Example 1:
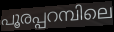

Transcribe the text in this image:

പൂരപ്പറമ്പിലെ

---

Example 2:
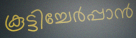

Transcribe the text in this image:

കൂട്ടിച്ചേർപ്പാൻ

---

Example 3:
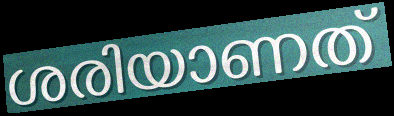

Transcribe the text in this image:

ശരിയാണത്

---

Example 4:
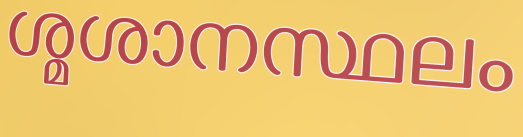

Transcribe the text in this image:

ശ്മശാനസ്ഥലം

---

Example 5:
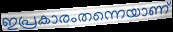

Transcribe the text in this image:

ഇപ്രകാരംതന്നെയാണ്